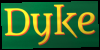
Dyke